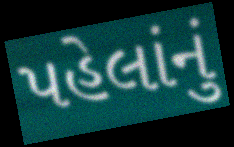
પહેલાંનું